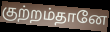
குற்றம்தானே